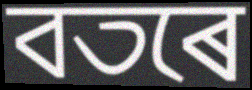
বতৰে